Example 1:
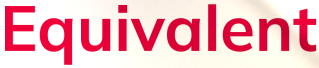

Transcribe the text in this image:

Equivalent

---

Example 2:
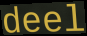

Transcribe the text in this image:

deel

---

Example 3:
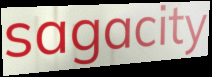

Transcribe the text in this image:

sagacity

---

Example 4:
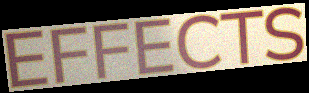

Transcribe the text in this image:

EFFECTS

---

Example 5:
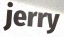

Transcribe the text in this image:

jerry